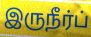
இருநீர்ப்